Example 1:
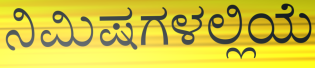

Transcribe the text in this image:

ನಿಮಿಷಗಳಲ್ಲಿಯೆ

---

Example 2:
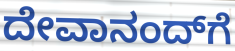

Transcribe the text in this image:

ದೇವಾನಂದ್‌ಗೆ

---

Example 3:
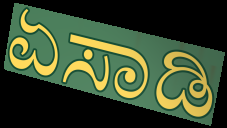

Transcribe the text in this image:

ಏಸಾಡಿ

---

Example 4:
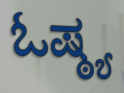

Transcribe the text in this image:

ಓಷ್ಠ್ಯ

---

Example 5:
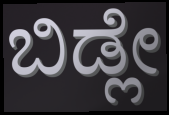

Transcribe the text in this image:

ಬಿಡ್ಲೇ